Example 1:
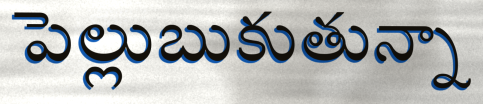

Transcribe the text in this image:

పెల్లుబుకుతున్నా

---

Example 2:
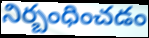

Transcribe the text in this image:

నిర్బంధించడం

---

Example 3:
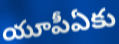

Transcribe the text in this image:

యూపీఏకు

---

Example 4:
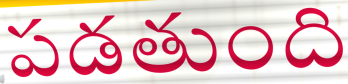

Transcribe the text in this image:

పడతుంది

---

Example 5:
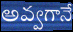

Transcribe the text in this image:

అవ్వగానే